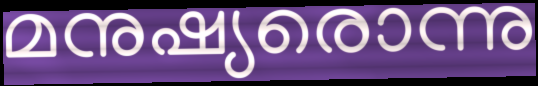
മനുഷ്യരൊന്നു